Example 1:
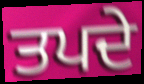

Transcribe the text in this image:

ਤਪਦੇ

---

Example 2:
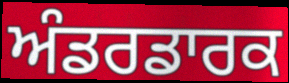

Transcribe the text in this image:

ਅੰਡਰਡਾਰਕ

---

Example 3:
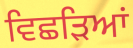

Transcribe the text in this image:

ਵਿਛੜਿਆਂ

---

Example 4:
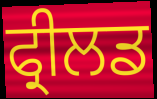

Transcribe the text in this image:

ਫ੍ਰੀਲਡ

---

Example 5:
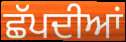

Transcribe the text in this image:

ਛੱਪਦੀਆਂ